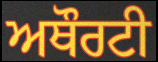
ਅਥੌਰਟੀ